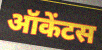
ऑकेंटस